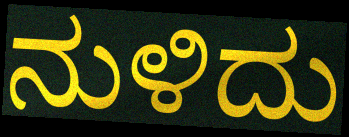
ನುಳಿದು